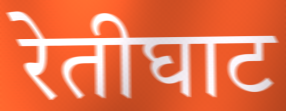
रेतीघाट